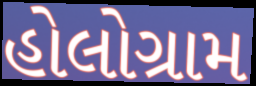
હોલોગ્રામ